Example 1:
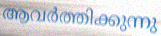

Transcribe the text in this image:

ആവർത്തിക്കുന്നു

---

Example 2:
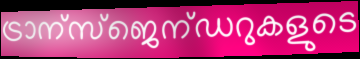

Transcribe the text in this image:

ട്രാന്സ്ജെന്ഡറുകളുടെ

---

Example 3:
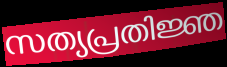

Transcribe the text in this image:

സത്യപ്രതിജ്ഞ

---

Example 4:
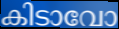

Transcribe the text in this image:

കിടാവോ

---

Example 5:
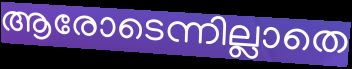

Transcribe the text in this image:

ആരോടെന്നില്ലാതെ